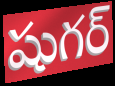
షుగర్